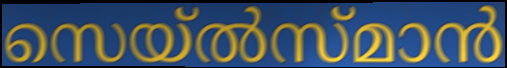
സെയ്ൽസ്മാൻ